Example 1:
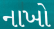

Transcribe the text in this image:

નાખો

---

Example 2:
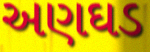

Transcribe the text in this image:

અણઘડ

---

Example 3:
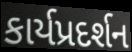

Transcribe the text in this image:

કાર્યપ્રદર્શન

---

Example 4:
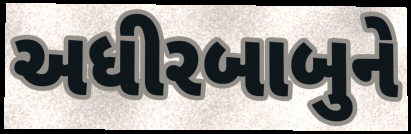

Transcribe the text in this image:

અધીરબાબુને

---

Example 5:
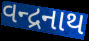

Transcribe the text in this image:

વન્દ્રનાથ